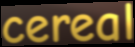
cereal